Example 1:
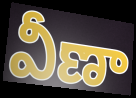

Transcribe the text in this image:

వీణా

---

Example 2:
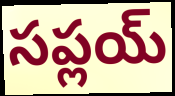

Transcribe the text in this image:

సప్లయ్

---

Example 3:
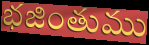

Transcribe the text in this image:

భజింతుము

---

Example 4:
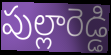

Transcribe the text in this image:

పుల్లారెడ్డి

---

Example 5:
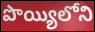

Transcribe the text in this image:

పొయ్యిలోని